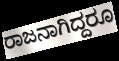
ರಾಜನಾಗಿದ್ದರೂ